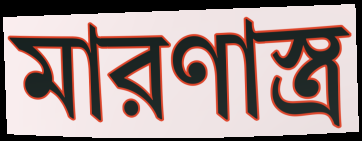
মারণাস্ত্র